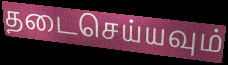
தடைசெய்யவும்